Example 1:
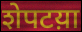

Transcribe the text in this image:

शेपटय़ा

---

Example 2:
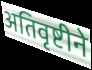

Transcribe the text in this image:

अतिवृष्टीने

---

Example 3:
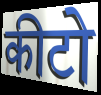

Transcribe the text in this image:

कीटो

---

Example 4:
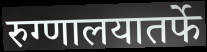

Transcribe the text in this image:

रुग्णालयातर्फे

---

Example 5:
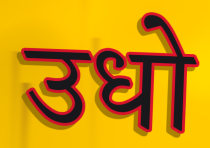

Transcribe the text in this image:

उधो